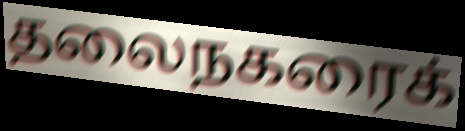
தலைநகரைக்